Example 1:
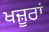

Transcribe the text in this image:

ਖਜ਼ੂਰਾਂ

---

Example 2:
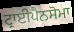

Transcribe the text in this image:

ਟ੍ਰਾਈਪੈਨਸੋਮਾ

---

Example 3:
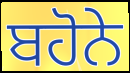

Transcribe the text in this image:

ਬਹੋਨੇ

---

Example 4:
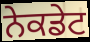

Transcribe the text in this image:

ਨੇਕਡੇਟ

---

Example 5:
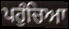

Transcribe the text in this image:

ਪਹੁੰਚਿਆ